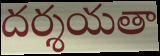
దర్శయతా